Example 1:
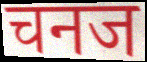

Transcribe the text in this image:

चनज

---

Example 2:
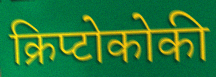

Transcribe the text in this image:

क्रिप्टोकोकी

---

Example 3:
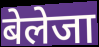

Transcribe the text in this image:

बेलेजा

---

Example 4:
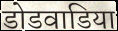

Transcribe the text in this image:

डोडवाडिया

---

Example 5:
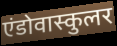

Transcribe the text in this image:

एंडोवास्कुलर